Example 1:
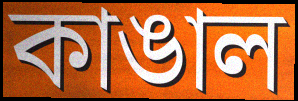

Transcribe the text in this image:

কাঙাল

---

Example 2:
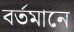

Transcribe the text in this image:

বর্তমানে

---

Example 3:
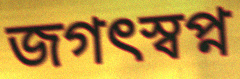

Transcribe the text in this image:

জগৎস্বপ্ন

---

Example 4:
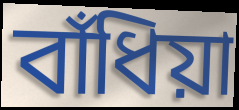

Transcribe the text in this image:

বাঁধিয়া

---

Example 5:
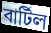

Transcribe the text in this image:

বার্টিল